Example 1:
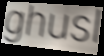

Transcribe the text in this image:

ghusl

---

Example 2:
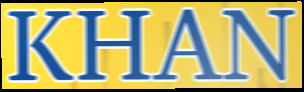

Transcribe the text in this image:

KHAN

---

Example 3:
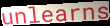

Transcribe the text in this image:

unlearns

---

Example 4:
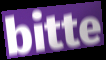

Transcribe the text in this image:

bitte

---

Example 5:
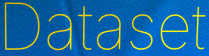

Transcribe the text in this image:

Dataset